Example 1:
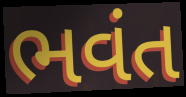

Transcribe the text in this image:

ભવંત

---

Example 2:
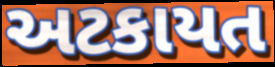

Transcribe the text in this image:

અટકાયત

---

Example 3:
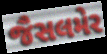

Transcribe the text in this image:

જૈસલમેર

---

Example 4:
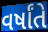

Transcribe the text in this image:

વર્ષાંતે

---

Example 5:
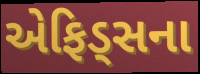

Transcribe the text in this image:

એફિડ્સના